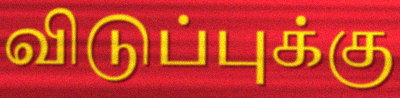
விடுப்புக்கு